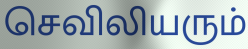
செவிலியரும்